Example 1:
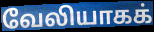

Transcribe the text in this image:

வேலியாகக்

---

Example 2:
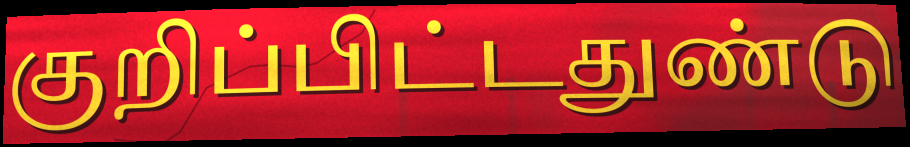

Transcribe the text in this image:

குறிப்பிட்டதுண்டு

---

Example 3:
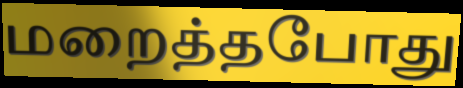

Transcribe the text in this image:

மறைத்தபோது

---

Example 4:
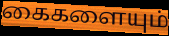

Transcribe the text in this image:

கைகளையும்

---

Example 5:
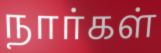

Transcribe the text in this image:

நார்கள்